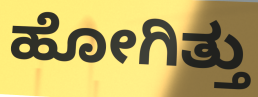
ಹೋಗಿತ್ತು